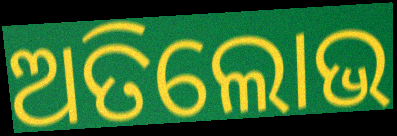
ଅତିଲୋଭ